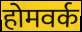
होमवर्क